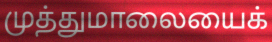
முத்துமாலையைக்